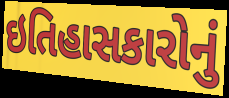
ઇતિહાસકારોનું